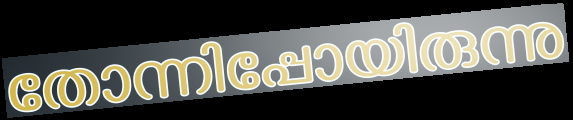
തോന്നിപ്പോയിരുന്നു